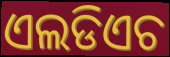
ଏଲଡିଏଚ